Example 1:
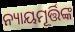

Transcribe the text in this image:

ନ୍ୟାୟମୂର୍ତ୍ତିଙ୍କ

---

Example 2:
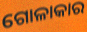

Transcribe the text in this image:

ଗୋଳାକାର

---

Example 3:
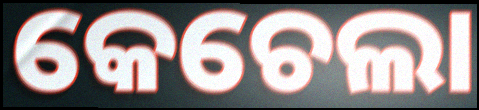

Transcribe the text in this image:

କେଚେଲା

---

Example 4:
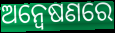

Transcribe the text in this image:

ଅନ୍ବେଷଣରେ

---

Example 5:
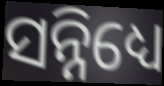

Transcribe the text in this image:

ସନ୍ନିଧ୍ୟେ